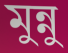
মুন্নু